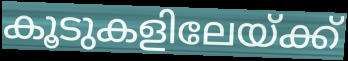
കൂടുകളിലേയ്ക്ക്